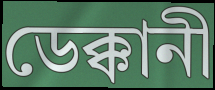
ডেক্কানী